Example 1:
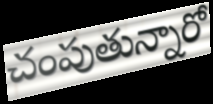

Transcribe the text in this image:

చంపుతున్నారో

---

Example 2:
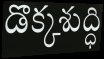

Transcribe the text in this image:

డొక్కశుద్ధి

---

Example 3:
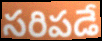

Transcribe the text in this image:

సరిపడే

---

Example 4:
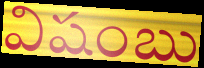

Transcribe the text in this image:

విషంబు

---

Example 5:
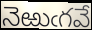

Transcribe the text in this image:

నెఱుఁగవే